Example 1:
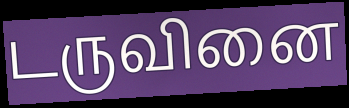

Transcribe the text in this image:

டருவினை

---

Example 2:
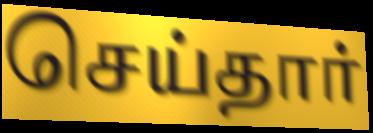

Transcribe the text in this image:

செய்தார்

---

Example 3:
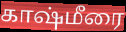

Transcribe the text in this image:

காஷ்மீரை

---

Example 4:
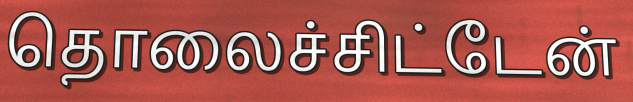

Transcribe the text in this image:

தொலைச்சிட்டேன்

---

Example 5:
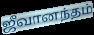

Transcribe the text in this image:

ஜீவானந்தம்